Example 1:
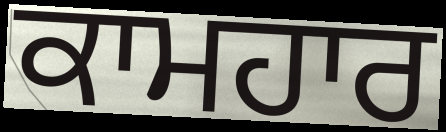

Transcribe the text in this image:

ਕਾਮਹਾਰ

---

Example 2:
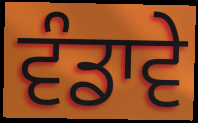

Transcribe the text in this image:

ਵੰਡਾਵੇ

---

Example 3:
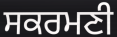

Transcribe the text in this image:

ਸਕਰਮਣੀ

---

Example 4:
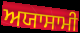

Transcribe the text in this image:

ਅਯਾਸਾਮੀ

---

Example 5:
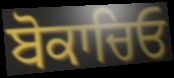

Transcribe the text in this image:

ਬੋਕਾਚਿਓ